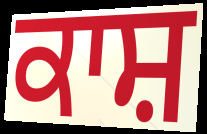
ਕਾਸ਼